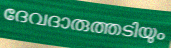
ദേവദാരുത്തടിയും